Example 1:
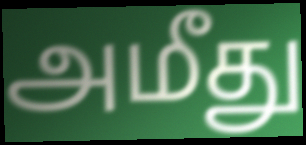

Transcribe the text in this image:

அமீது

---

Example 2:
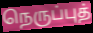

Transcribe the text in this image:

நெருப்புத்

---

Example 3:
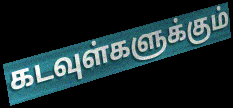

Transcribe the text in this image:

கடவுள்களுக்கும்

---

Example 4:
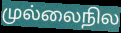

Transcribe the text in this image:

முல்லைநில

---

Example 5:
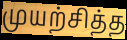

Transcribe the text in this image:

முயற்சித்த